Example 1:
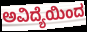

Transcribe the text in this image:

ಅವಿದ್ಯೆಯಿಂದ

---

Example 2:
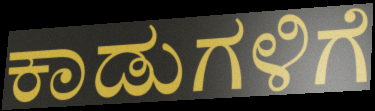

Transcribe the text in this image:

ಕಾಡುಗಳಿಗೆ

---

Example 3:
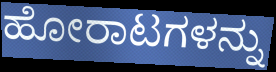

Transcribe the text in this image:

ಹೋರಾಟಗಳನ್ನು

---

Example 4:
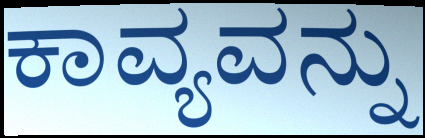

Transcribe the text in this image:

ಕಾವ್ಯವನ್ನು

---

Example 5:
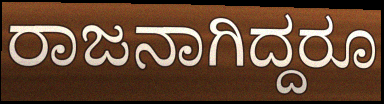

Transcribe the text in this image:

ರಾಜನಾಗಿದ್ದರೂ